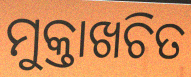
ମୁକ୍ତାଖଚିତ